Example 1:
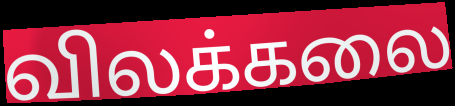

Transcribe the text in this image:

விலக்கலை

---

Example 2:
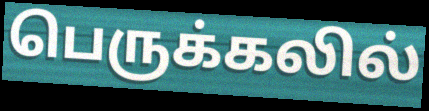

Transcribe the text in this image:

பெருக்கலில்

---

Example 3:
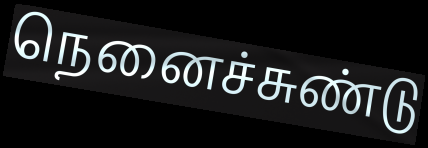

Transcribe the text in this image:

நெனைச்சுண்டு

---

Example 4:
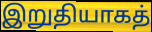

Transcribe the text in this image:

இறுதியாகத்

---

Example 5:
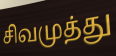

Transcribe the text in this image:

சிவமுத்து